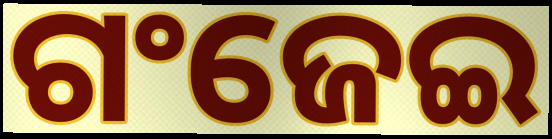
ଗଂଜେଇ